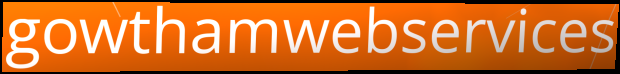
gowthamwebservices